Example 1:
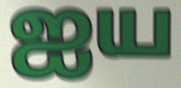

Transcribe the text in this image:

ஐய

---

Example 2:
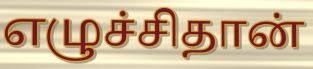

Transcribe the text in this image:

எழுச்சிதான்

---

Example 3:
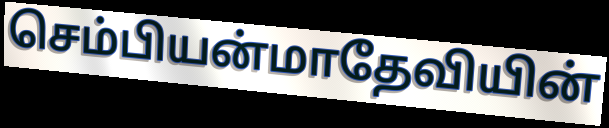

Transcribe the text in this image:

செம்பியன்மாதேவியின்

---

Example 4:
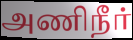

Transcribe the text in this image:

அணிநீர்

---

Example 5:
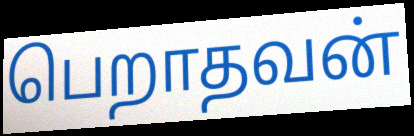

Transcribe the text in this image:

பெறாதவன்